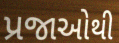
પ્રજાઓથી